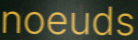
noeuds